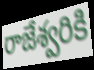
రాజేశ్వరికి